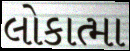
લોકાત્મા